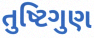
તુષ્ટિગુણ